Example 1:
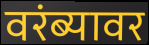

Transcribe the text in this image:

वरंब्यावर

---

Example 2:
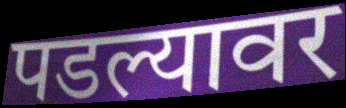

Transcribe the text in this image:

पडल्यावर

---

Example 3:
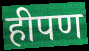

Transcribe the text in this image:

हीपण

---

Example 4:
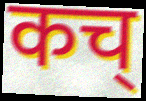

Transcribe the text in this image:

कच्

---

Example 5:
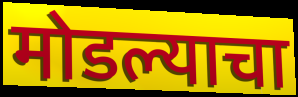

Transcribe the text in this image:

मोडल्याचा